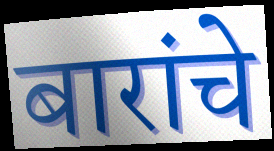
बारांचे